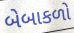
બેબાકળો